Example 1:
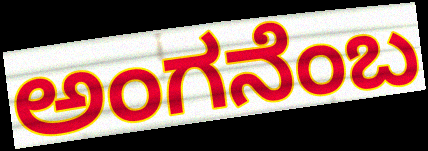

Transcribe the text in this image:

ಅಂಗನೆಂಬ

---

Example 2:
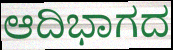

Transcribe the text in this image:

ಆದಿಭಾಗದ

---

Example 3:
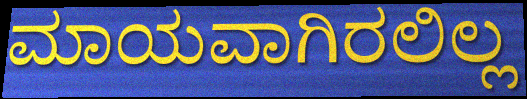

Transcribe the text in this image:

ಮಾಯವಾಗಿರಲಿಲ್ಲ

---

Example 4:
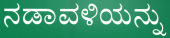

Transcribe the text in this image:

ನಡಾವಳಿಯನ್ನು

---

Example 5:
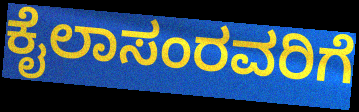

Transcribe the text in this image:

ಕೈಲಾಸಂರವರಿಗೆ